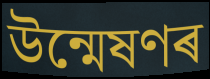
উন্মেষণৰ